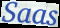
Saas